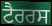
ਟੈਰਰਸ